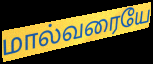
மால்வரையே